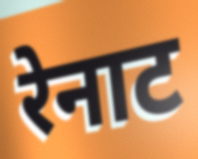
रेनाट